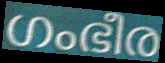
ഗംഭീര